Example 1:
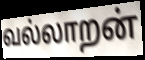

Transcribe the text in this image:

வல்லாறன்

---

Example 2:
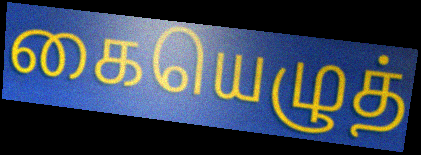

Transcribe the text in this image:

கையெழுத்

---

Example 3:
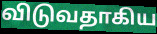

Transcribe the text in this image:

விடுவதாகிய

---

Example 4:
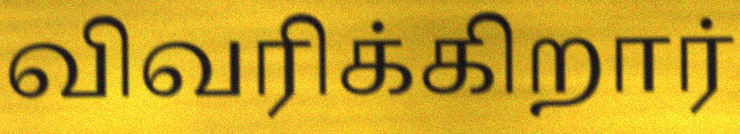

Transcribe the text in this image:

விவரிக்கிறார்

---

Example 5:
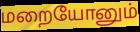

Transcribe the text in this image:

மறையோனும்